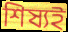
শিষ্যই